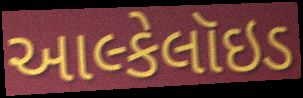
આલ્કેલૉઇડ